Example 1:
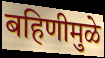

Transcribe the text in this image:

बहिणीमुळे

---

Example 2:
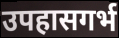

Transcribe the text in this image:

उपहासगर्भ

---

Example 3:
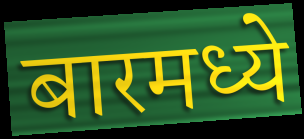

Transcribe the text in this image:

बारमध्ये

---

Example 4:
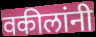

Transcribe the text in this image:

वकीलांनी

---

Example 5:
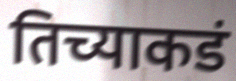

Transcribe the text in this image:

तिच्याकडं